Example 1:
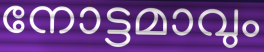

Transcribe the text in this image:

നോട്ടമാവും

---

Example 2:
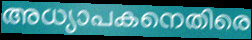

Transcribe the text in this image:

അധ്യാപകനെതിരെ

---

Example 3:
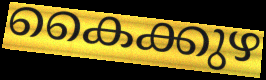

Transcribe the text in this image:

കൈക്കുഴ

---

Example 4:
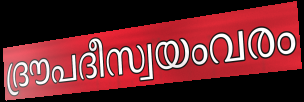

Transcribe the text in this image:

ദ്രൗപദീസ്വയംവരം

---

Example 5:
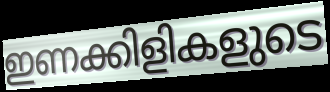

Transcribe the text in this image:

ഇണക്കിളികളുടെ